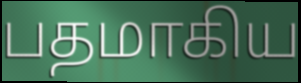
பதமாகிய